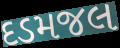
દડમજલ